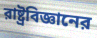
রাষ্ট্রবিজ্ঞানের